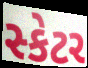
સ્કેટર